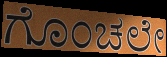
ಗೊಂಚಲೇ